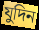
যুদিন